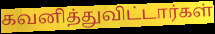
கவனித்துவிட்டார்கள்